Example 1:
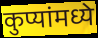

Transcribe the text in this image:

कुप्यांमध्ये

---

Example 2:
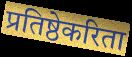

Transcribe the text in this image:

प्रतिष्ठेकरिता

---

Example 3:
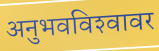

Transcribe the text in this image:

अनुभवविश्वावर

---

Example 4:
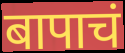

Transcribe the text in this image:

बापाचं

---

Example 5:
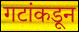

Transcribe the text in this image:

गटांकडून